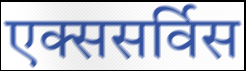
एक्ससर्विस